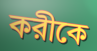
করীকে